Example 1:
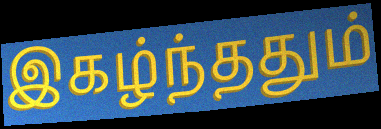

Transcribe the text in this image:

இகழ்ந்ததும்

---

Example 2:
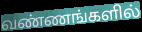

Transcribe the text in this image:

வண்ணங்களில்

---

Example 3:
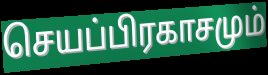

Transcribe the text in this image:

செயப்பிரகாசமும்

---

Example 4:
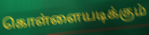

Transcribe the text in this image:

கொள்ளையடிக்கும்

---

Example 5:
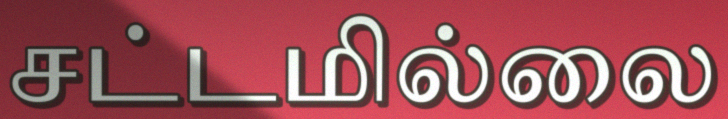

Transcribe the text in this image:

சட்டமில்லை